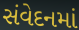
સંવેદનમાં